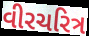
વીરચરિત્ર